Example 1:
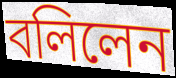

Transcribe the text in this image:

বলিলেন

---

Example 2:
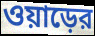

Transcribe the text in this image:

ওয়াড়ের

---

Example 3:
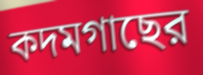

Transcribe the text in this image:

কদমগাছের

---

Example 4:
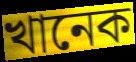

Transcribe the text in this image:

খানেক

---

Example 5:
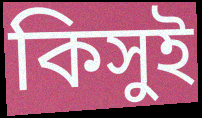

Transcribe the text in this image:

কিসুই